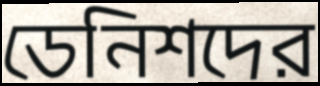
ডেনিশদের